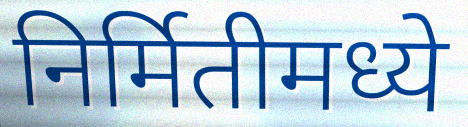
निर्मितीमध्ये